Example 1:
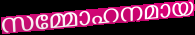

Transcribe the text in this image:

സമ്മോഹനമായ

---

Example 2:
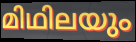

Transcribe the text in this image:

മിഥിലയും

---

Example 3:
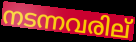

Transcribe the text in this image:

നടന്നവരില്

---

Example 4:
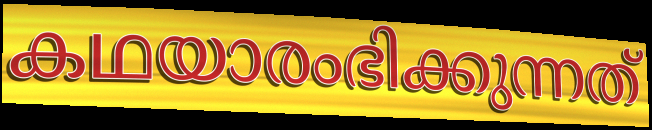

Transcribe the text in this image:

കഥയാരംഭിക്കുന്നത്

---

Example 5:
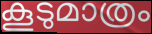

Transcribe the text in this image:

കൂടുമാത്രം